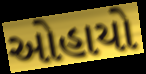
ઓહાયો